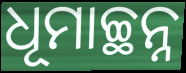
ଧୂମାଚ୍ଛନ୍ନ